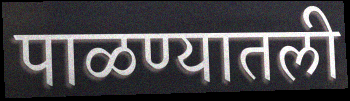
पाळण्यातली